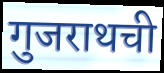
गुजराथची